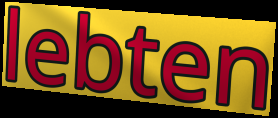
lebten